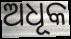
ଅଧୂକ